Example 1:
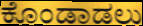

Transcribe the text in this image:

ಕೊಂಡಾಡಲು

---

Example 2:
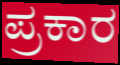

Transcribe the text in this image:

ಪ್ರಕಾರ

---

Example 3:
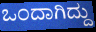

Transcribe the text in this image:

ಒಂದಾಗಿದ್ದು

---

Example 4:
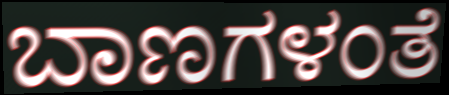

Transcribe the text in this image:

ಬಾಣಗಳಂತೆ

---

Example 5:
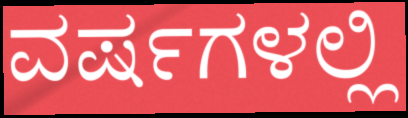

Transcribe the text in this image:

ವರ್ಷಗಳಲ್ಲಿ